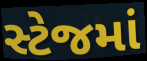
સ્ટેજમાં